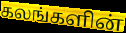
கலங்களின்